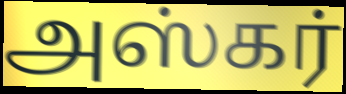
அஸ்கர்